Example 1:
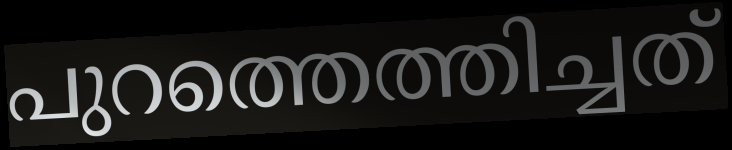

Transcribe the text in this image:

പുറത്തെത്തിച്ചത്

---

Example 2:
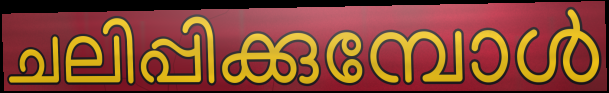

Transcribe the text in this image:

ചലിപ്പിക്കുമ്പോൾ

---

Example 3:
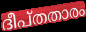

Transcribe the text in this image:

ദീപ്തതാരം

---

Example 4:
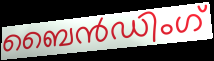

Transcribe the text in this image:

ബൈൻഡിംഗ്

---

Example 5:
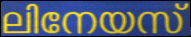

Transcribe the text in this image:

ലിനേയസ്